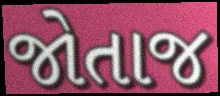
જોતાજ